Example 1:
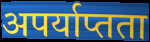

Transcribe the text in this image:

अपर्याप्‍तता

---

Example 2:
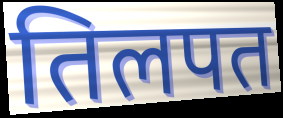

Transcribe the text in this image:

तिलपत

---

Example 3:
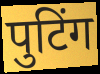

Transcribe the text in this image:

पुटिंग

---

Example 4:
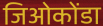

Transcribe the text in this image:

जिओकोंडा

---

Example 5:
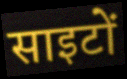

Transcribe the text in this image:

साइटों